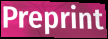
Preprint